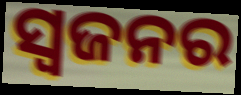
ସ୍ୱଜନର